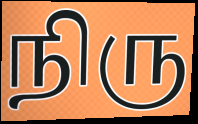
நிரு